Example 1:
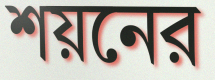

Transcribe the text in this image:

শয়নের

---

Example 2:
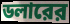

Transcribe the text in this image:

ডলারের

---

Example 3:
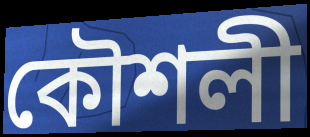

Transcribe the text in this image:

কৌশলী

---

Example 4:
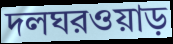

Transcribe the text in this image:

দলঘরওয়াড়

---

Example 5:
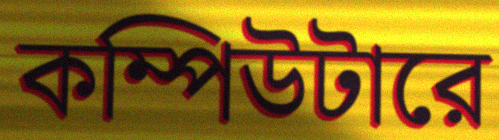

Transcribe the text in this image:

কম্পিউটারে